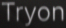
Tryon